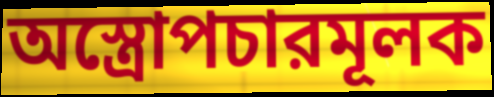
অস্ত্রোপচারমূলক